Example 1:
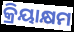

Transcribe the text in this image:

କ୍ରିୟାକ୍ଷମ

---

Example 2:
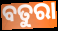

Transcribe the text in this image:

ବତୁରା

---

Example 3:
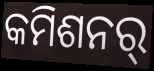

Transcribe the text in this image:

କମିଶନର୍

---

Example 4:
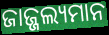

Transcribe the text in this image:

ଜାଜ୍ଜଲ୍ୟମାନ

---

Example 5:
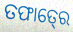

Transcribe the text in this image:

ତଫାତ୍‍ରେ